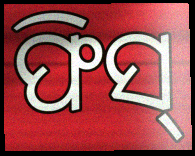
ଫିସ୍